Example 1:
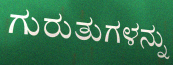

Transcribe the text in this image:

ಗುರುತುಗಳನ್ನು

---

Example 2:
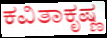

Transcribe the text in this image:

ಕವಿತಾಕೃಷ್ಣ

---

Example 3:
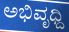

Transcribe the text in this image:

ಅಭಿವೃಧ್ದಿ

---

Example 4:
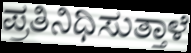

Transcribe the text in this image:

ಪ್ರತಿನಿಧಿಸುತ್ತಾಳೆ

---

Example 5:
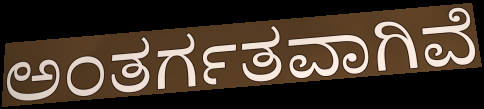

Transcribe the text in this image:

ಅಂತರ್ಗತವಾಗಿವೆ